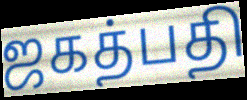
ஜகத்பதி